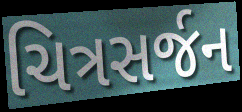
ચિત્રસર્જન